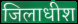
जिलाधीश